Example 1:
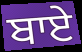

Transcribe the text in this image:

ਬਾਏ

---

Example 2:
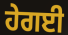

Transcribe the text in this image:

ਹੇਗਈ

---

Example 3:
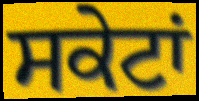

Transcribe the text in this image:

ਸਕੇਟਾਂ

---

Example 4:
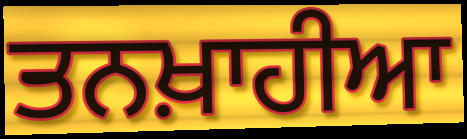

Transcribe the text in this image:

ਤਨਖ਼ਾਹੀਆ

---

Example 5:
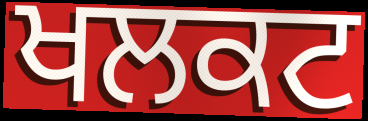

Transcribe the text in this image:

ਖਲਕਟ